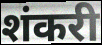
शंकरी